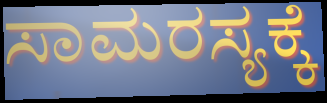
ಸಾಮರಸ್ಯಕ್ಕೆ